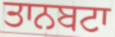
ਤਾਨਬਟਾ